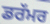
ਡਰੱਮਰ